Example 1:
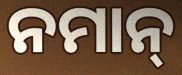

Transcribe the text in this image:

ନମାନ୍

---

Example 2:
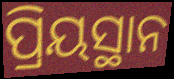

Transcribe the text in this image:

ପ୍ରିୟସ୍ଥାନ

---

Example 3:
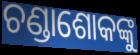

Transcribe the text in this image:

ଚଣ୍ଡାଶୋକଙ୍କୁ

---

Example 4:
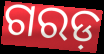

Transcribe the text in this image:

ଗରଡ଼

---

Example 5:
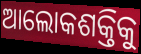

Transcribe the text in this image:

ଆଲୋକଶକ୍ତିକୁ